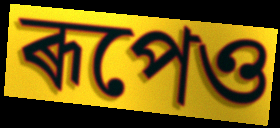
ৰূপেও